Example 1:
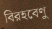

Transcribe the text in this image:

বিরহবেণু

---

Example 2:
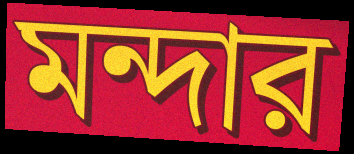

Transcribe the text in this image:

মন্দার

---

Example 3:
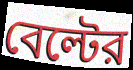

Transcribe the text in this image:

বেল্টের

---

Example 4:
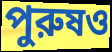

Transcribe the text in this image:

পুরুষও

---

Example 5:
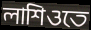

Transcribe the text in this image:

লাশিওতে